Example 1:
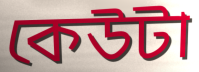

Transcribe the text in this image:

কেউটা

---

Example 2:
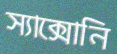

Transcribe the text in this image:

স্যাক্সোনি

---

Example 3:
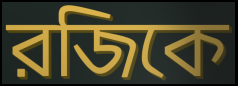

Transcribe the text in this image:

রজিকে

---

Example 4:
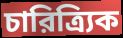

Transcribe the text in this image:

চারিত্র্যিক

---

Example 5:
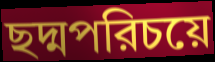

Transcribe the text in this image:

ছদ্মপরিচয়ে